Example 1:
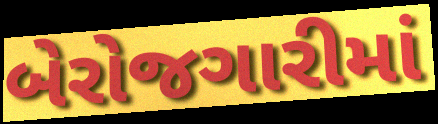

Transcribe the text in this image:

બેરોજગારીમાં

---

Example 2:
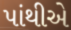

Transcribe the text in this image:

પાંથીએ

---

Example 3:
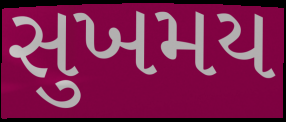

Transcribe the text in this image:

સુખમય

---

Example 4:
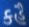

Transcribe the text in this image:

કહૈ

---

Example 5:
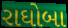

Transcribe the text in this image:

રાઘોબા